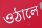
ওঠালে